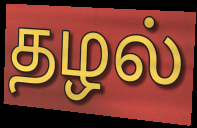
தழல்